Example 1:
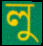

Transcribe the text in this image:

লু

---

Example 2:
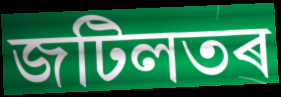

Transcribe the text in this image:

জটিলতৰ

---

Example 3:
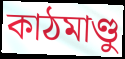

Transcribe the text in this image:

কাঠমাণ্ডু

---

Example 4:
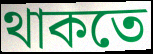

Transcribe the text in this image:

থাকতে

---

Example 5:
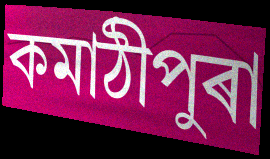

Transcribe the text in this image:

কমাঠীপুৰা